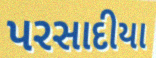
પરસાદીયા